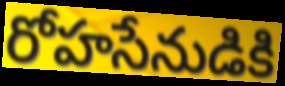
రోహసేనుడికి